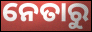
ନେତାରୁ